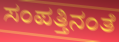
ಸಂಪತ್ತಿನಂತೆ